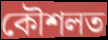
কৌশলত